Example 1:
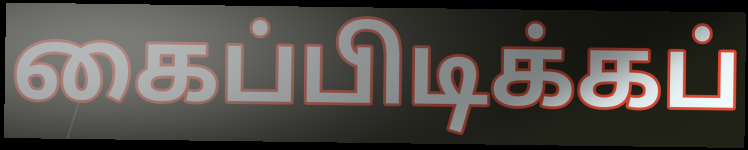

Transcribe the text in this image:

கைப்பிடிக்கப்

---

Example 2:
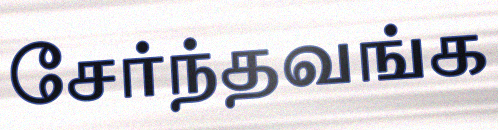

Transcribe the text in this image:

சேர்ந்தவங்க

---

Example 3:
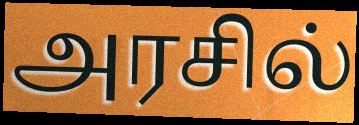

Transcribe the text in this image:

அரசில்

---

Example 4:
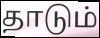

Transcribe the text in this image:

தாடும்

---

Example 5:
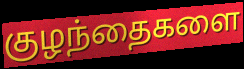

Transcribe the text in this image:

குழந்தைகளை